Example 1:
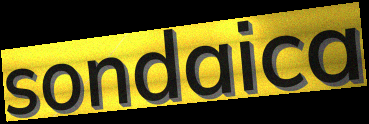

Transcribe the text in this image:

sondaica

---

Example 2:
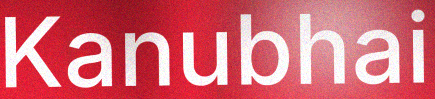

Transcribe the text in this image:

Kanubhai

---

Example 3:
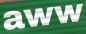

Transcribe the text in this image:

aww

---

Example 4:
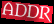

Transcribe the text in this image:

ADDR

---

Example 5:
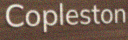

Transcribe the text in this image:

Copleston